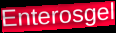
Enterosgel